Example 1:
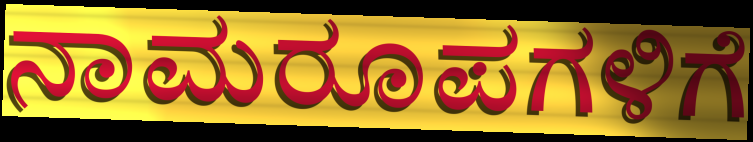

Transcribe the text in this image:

ನಾಮರೂಪಗಳಿಗೆ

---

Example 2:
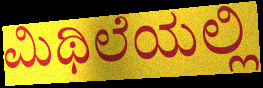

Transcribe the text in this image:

ಮಿಥಿಲೆಯಲ್ಲಿ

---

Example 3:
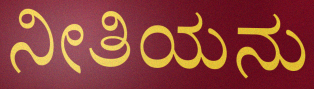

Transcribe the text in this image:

ನೀತಿಯನು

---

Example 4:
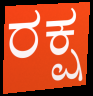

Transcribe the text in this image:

ರಕ್ಷ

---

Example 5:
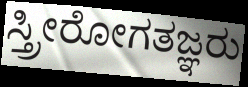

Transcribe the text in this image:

ಸ್ತ್ರೀರೋಗತಜ್ಞರು